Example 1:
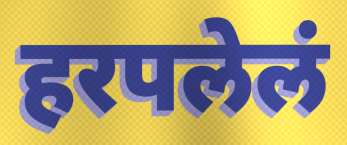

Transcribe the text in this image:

हरपलेलं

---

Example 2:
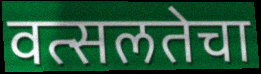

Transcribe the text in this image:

वत्सलतेचा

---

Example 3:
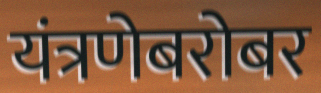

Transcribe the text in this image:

यंत्रणेबरोबर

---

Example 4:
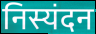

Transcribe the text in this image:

निस्यंदन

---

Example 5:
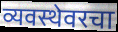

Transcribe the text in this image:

व्यवस्थेवरचा